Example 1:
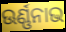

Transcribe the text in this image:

ଊର୍ଣ୍ଣନାଭ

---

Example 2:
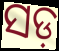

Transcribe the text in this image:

ସଡ଼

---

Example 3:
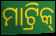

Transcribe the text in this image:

ମାଟ୍ରିକ୍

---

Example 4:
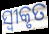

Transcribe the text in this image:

ସ୍ବୀକୃତ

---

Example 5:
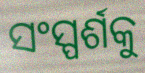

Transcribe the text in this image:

ସଂସ୍ପର୍ଶକୁ